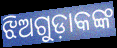
ଝିଅଗୁଡ଼ାକଙ୍କ